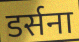
डर्सना